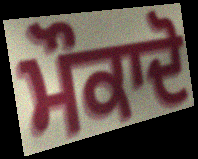
ਮੌਕਾਦੋ